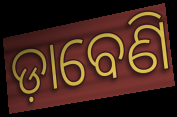
ଡ଼ାବେଣି